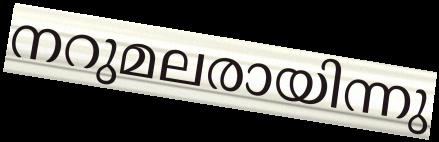
നറുമലരായിന്നു